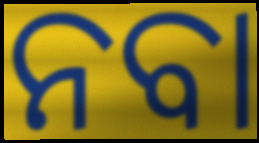
ନବା